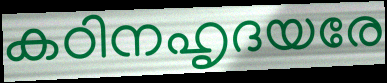
കഠിനഹൃദയരേ